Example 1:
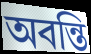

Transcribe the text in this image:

অবন্তি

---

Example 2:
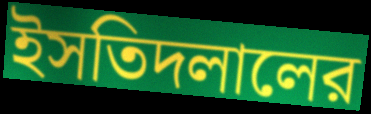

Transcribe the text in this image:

ইসতিদলালের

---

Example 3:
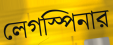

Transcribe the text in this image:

লেগস্পিনার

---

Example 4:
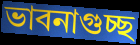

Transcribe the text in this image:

ভাবনাগুচ্ছ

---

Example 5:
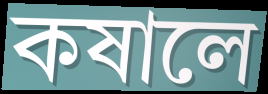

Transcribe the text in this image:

কষালে